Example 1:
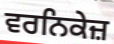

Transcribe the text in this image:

ਵਰਨਿਕੇਜ਼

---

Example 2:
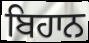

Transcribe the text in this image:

ਬਿਹਾਨ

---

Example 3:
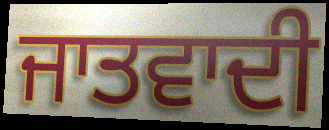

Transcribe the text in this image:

ਜਾਤਵਾਦੀ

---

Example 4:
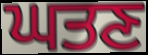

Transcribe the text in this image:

ਘਤਣ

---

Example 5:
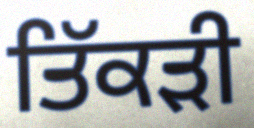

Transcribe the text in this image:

ਤਿੱਕੜੀ